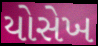
યોસેખ